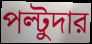
পল্টুদার